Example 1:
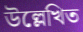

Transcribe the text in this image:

উল্লেখিত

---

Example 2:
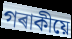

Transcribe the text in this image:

গৰাকীয়ে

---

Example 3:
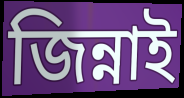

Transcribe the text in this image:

জিন্নাই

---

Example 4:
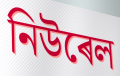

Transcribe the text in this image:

নিউৰেল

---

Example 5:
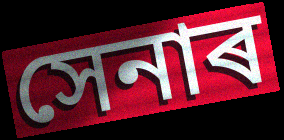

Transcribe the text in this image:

সেনাৰ